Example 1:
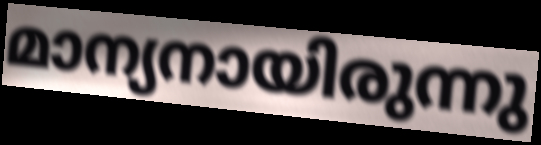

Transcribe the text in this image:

മാന്യനായിരുന്നു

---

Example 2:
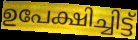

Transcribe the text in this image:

ഉപേക്ഷിച്ചിട്ട്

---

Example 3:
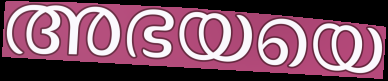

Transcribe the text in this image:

അഭയയെ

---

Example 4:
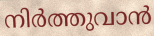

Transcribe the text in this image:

നിർത്തുവാൻ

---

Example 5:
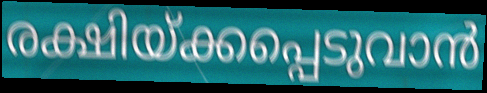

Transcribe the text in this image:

രക്ഷിയ്ക്കപ്പെടുവാൻ